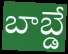
బాబ్డే